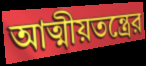
আত্মীয়তন্ত্রের